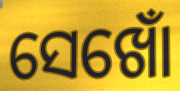
ସେଖୋଁ